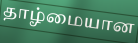
தாழ்மையான